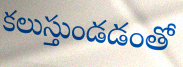
కలుస్తుండడంతో